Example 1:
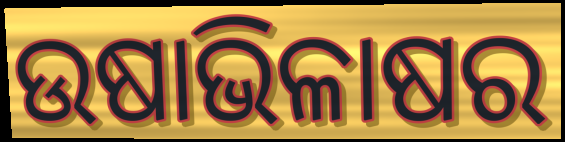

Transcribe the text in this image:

ଉଷାଭିଳାଷର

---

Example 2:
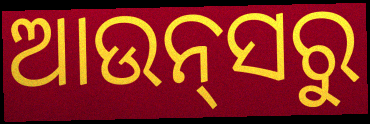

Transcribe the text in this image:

ଆଉନ୍‍ସରୁ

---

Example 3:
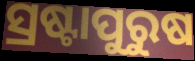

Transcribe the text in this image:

ସ୍ରଷ୍ଟାପୁରୁଷ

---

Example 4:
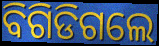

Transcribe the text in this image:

ବିଗିଡିଗଲେ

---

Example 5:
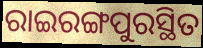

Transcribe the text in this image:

ରାଇରଙ୍ଗପୁରସ୍ଥିତ